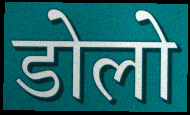
डोलो